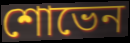
শোভেন